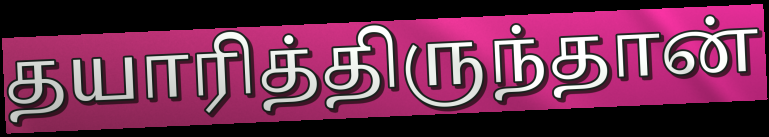
தயாரித்திருந்தான்